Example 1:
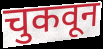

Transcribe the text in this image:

चुकवून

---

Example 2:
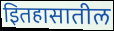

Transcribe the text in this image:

इितहासातील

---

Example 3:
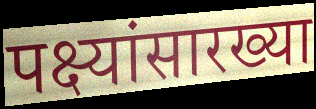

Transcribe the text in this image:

पक्ष्यांसारख्या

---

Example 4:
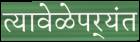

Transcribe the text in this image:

त्यावेळेपर्यंत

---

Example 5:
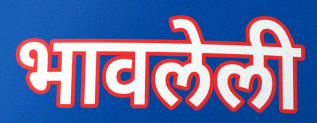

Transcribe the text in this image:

भावलेली